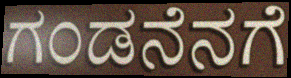
ಗಂಡನೆನಗೆ